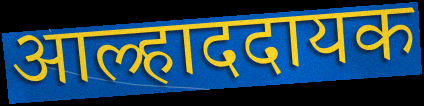
आल्हाददायक